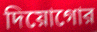
দিয়োগোর